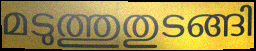
മടുത്തുതുടങ്ങി